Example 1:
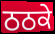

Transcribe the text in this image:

ਠਠਕੇ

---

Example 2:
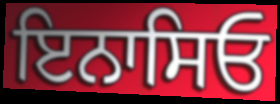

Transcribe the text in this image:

ਇਨਾਸਿਓ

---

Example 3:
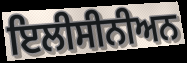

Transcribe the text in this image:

ਇਲੀਸੀਨੀਅਨ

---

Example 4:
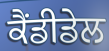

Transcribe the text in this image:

ਕੈਂਡੀਡੇਲ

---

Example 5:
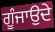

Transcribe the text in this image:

ਗੂੰਜਾਉਦੇ